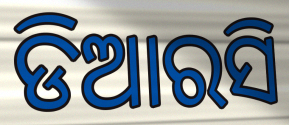
ଡିଆରସି